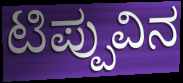
ಟಿಪ್ಪುವಿನ